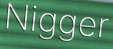
Nigger